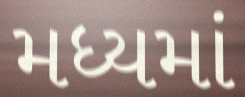
મધ્યમાં